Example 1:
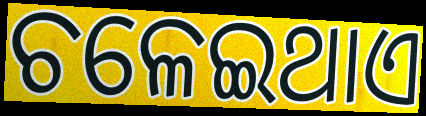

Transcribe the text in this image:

ଚଳେଇଥାଏ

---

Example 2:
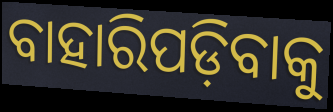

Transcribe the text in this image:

ବାହାରିପଡ଼ିବାକୁ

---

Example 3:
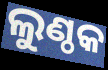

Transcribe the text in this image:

ଲୁଣ୍ଠକ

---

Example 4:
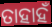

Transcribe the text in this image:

ତାହାହଁ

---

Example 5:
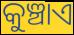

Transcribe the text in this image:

କୁଞ୍ଚାଏ